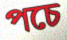
পচে